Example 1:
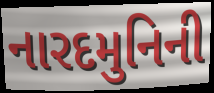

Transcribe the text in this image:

નારદમુનિની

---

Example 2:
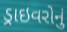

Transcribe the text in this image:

ડ્રાઇવરોનું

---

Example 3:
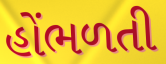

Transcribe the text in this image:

હોંભળતી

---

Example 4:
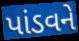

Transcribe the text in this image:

પાંડવને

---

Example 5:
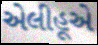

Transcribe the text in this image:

એલીહૂએ